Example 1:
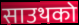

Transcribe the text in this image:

साउथको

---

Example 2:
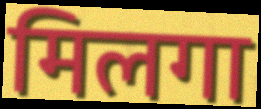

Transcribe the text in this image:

मिलगा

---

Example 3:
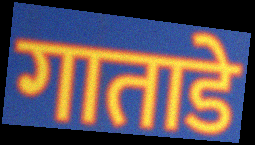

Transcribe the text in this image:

गाताडे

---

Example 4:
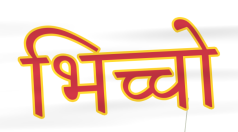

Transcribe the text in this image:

भिच्चो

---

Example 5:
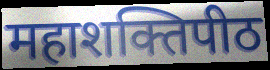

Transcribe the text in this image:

महाशक्तिपीठ